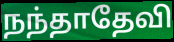
நந்தாதேவி